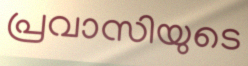
പ്രവാസിയുടെ